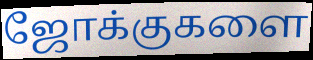
ஜோக்குகளை